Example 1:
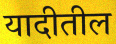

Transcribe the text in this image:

यादीतील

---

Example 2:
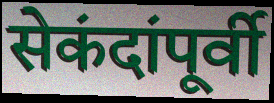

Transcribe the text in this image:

सेकंदांपूर्वी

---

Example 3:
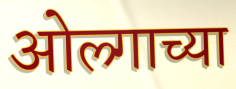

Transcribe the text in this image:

ओल्गाच्या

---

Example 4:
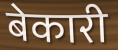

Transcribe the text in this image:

बेकारी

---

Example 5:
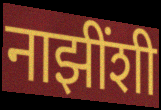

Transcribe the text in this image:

नाझींशी